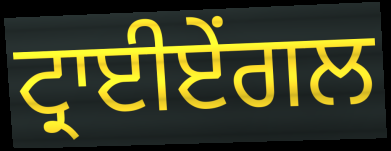
ਟ੍ਰਾਈਏਂਗਲ